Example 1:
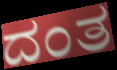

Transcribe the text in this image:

ದಂತ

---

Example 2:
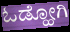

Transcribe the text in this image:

ಓಡ್ಹೋಗಿ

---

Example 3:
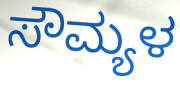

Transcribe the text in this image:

ಸೌಮ್ಯಳ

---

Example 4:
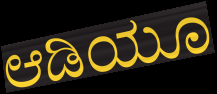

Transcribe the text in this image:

ಆಡಿಯೂ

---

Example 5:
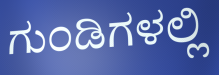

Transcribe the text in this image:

ಗುಂಡಿಗಳಲ್ಲಿ